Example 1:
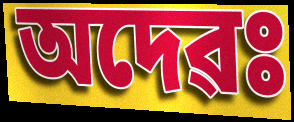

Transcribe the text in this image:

অদেৱঃ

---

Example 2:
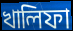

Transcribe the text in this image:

খালিফা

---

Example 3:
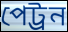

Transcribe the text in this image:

পেট্ৰন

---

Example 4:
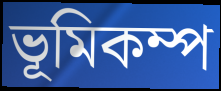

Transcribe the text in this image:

ভূমিকম্প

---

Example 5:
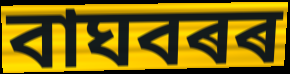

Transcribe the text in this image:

বাঘবৰৰ